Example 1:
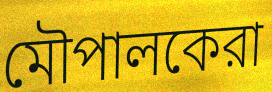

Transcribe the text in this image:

মৌপালকেরা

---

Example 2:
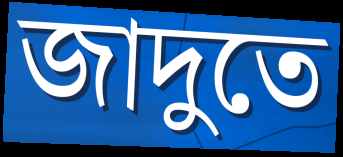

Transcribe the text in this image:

জাদুতে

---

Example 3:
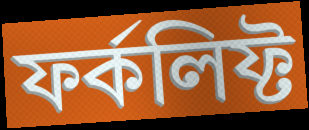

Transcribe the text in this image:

ফর্কলিফ্ট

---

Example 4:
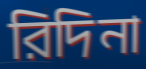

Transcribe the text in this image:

রিদিনা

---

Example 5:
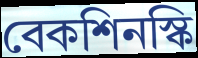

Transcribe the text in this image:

বেকশিনস্কি